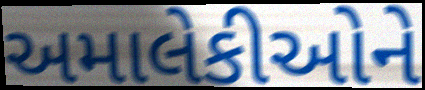
અમાલેકીઓને